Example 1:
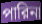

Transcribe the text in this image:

পারিনা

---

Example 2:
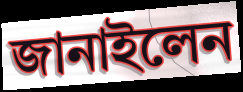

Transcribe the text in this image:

জানাইলেন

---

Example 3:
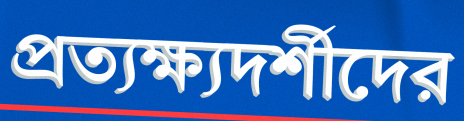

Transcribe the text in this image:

প্রত্যক্ষ্যদর্শীদের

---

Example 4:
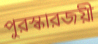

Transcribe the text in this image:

পুরস্কারজয়ী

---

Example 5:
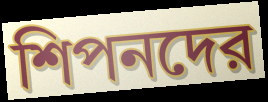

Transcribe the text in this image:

শিপনদের